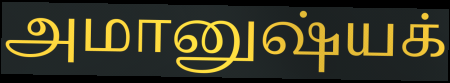
அமானுஷ்யக்